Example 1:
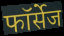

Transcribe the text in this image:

फॉर्सेज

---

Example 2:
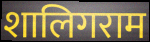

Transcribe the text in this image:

शालिगराम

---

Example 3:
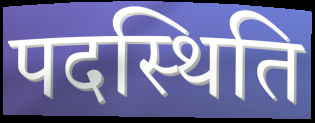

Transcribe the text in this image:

पदस्थिति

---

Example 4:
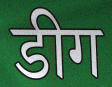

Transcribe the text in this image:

डीग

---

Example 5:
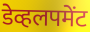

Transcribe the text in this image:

डेव्हलपमेंट